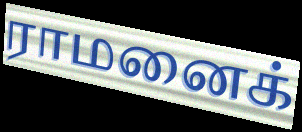
ராமனைக்